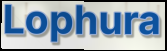
Lophura